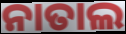
ନାତାଲ